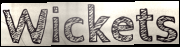
Wickets